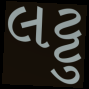
લટ્ટુ